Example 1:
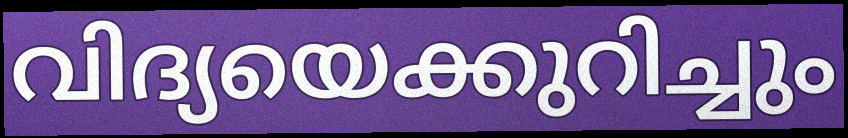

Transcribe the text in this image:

വിദ്യയെക്കുറിച്ചും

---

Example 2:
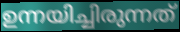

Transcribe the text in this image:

ഉന്നയിച്ചിരുന്നത്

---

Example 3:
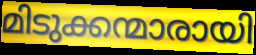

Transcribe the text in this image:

മിടുക്കന്മാരായി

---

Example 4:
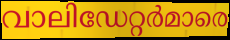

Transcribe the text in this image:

വാലിഡേറ്റർമാരെ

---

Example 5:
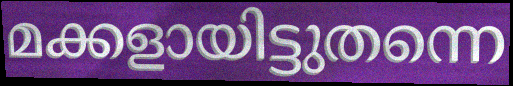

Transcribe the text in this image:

മക്കളായിട്ടുതന്നെ